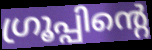
ഗ്രൂപ്പിന്റെ